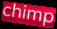
chimp